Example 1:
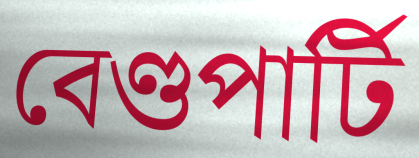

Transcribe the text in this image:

বেণ্ডপাৰ্টি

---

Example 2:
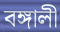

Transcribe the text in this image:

বঙ্গালী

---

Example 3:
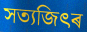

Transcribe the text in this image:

সত্যজিৎৰ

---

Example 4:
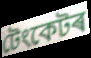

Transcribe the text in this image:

টেংকেটৰ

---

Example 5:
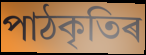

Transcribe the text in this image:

পাঠকৃতিৰ